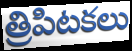
త్రిపిటకలు